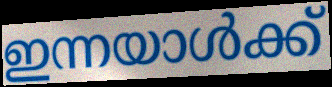
ഇന്നയാൾക്ക്